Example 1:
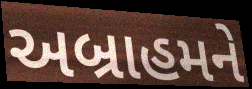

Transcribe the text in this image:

અબ્રાહમને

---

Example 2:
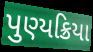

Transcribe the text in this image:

પુણ્યક્રિયા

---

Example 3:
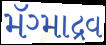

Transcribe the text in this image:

મૅગ્માદ્રવ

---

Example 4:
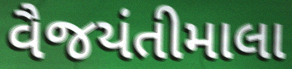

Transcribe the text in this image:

વૈજયંતીમાલા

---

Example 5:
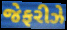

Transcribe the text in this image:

જેફરીઝે